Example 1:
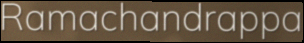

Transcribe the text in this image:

Ramachandrappa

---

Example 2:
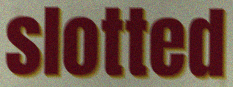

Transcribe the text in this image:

slotted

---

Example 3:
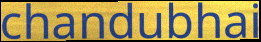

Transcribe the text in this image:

chandubhai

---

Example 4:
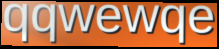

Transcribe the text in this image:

qqwewqe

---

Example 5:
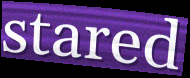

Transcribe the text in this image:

stared